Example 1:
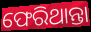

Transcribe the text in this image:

ଫେରିଥାନ୍ତା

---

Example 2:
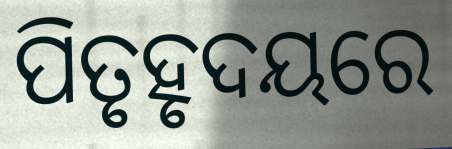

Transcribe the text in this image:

ପିତୃହୃଦୟରେ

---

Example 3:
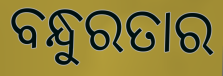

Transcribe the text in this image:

ବନ୍ଧୁରତାର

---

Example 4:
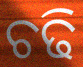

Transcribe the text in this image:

ଚଢି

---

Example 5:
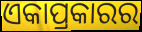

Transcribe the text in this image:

ଏକାପ୍ରକାରର